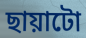
ছায়াটো